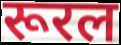
रूरल